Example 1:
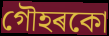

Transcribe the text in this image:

গৌহৰকো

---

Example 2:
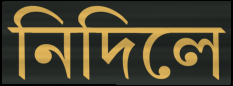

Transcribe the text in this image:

নিদিলে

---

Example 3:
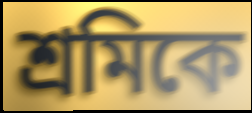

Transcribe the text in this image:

শ্ৰমিকে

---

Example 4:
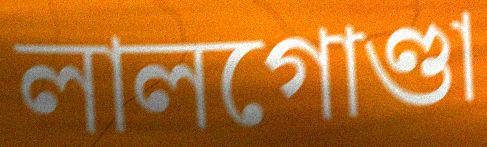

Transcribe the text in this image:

লালগোণ্ডা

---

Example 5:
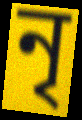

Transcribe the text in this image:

নৃ